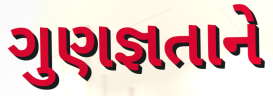
ગુણજ્ઞતાને